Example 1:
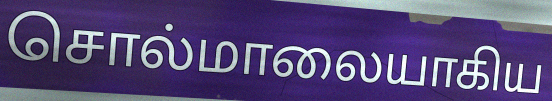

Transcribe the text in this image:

சொல்மாலையாகிய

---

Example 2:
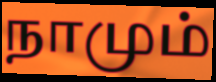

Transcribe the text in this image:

நாமும்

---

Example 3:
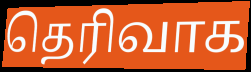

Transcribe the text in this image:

தெரிவாக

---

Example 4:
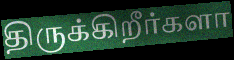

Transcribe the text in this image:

திருக்கிறீர்களா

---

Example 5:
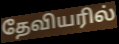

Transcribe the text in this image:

தேவியரில்